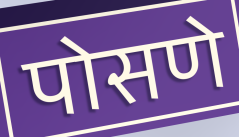
पोसणे